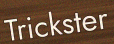
Trickster